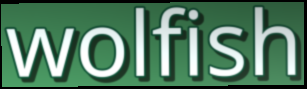
wolfish